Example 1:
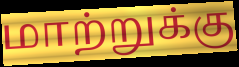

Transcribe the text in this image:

மாற்றுக்கு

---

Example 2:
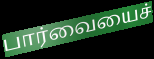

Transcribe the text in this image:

பார்வையைச்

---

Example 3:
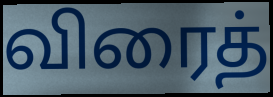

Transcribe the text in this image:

விரைத்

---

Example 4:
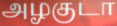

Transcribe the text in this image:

அழகுடா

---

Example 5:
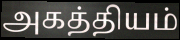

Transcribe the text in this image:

அகத்தியம்